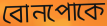
বোনপোকে